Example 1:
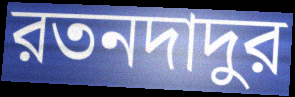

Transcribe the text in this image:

রতনদাদুর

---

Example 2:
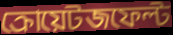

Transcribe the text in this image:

ক্রোয়েটজফেল্ট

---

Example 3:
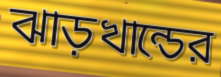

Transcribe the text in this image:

ঝাড়খান্ডের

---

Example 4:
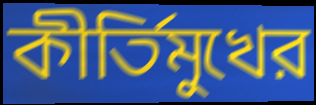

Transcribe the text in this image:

কীর্তিমুখের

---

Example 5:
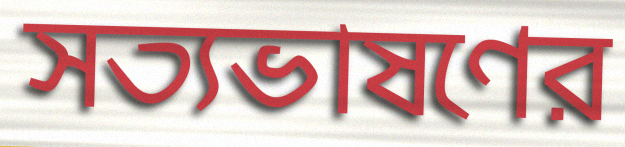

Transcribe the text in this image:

সত্যভাষণের